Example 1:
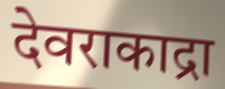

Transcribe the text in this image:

देवराकाद्रा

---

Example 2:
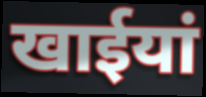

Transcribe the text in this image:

खाईयां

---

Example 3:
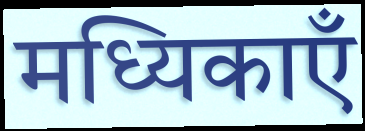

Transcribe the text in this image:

मध्यिकाएँ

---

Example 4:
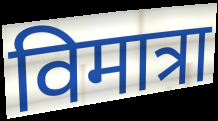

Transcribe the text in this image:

विमात्रा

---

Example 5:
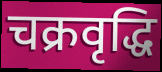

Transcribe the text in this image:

चक्रवृद्धि